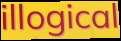
illogical